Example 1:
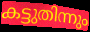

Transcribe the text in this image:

കട്ടുതിന്നും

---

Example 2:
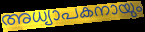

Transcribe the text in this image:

അധ്യാപകനായും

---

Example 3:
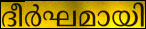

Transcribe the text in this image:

ദീർഘമായി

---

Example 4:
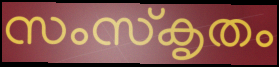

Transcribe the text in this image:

സംസ്കൃതം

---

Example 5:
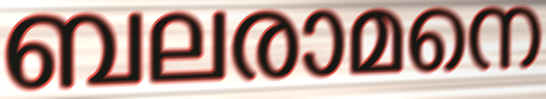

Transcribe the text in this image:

ബലരാമനെ